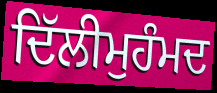
ਦਿੱਲੀਮੁਹੰਮਦ